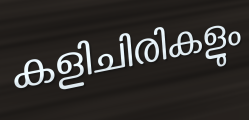
കളിചിരികളും